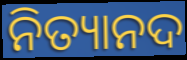
ନିତ୍ୟାନଦ